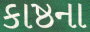
કાષ્ઠના